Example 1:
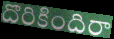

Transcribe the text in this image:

దొరికిందిరా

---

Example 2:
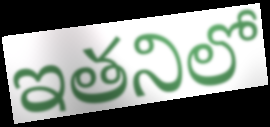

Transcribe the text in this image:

ఇతనిలో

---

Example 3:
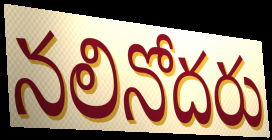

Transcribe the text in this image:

నలినోదరు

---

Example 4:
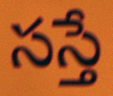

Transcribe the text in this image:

సస్తే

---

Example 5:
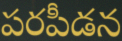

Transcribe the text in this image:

పరపీడన